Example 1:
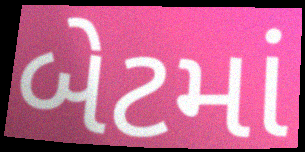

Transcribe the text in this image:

બેટમાં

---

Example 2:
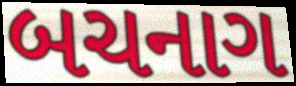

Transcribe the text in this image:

બચનાગ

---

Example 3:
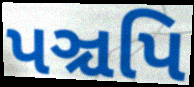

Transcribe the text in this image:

પઞ્ચપિ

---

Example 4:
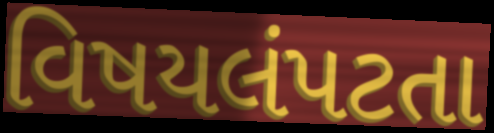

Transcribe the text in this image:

વિષયલંપટતા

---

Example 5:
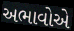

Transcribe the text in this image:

અભાવોએ